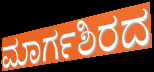
ಮಾರ್ಗಶಿರದ